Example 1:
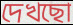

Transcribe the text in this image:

দেখছো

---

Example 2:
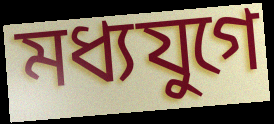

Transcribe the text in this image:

মধ্যযুগে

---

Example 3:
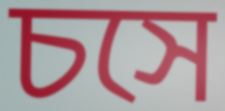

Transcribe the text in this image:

চসে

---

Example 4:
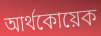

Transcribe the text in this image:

আর্থকোয়েক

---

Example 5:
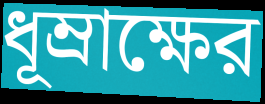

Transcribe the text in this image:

ধূম্রাক্ষের